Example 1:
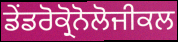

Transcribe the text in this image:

ਡੇਂਡਰੋਕ੍ਰੋਨੋਲੋਜੀਕਲ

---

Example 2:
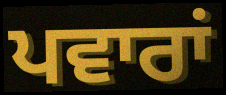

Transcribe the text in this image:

ਪਵਾਰਾਂ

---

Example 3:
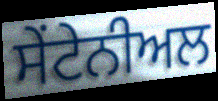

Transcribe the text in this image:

ਸੇਂਟੇਨੀਅਲ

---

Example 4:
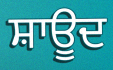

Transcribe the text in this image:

ਸ਼ਾਊਦ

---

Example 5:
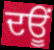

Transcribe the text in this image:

ਦਊਂ